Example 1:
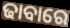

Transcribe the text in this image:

ଢାବାରେ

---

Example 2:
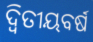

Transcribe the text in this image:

ଦ୍ୱିତୀୟବର୍ଷ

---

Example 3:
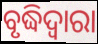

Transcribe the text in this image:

ବୃଦ୍ଧିଦ୍ୱାରା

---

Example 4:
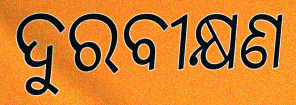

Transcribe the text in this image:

ଦୁରବୀକ୍ଷଣ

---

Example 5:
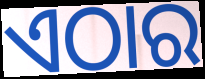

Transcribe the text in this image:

ଏଠାର